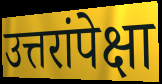
उत्तरांपेक्षा